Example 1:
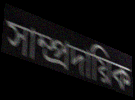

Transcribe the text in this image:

সাম্প্ৰদায়িক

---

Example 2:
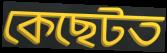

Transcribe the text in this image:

কেছেটত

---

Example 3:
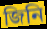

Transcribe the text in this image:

জিনি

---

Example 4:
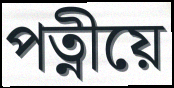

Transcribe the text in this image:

পত্নীয়ে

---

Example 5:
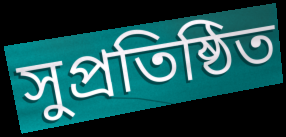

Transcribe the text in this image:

সুপ্ৰতিষ্ঠিত